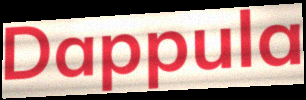
Dappula